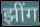
झींग